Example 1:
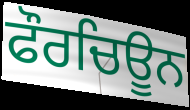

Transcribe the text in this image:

ਫੌਰਚਿਊਨ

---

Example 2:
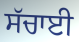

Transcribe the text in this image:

ਸੱਚਾਈ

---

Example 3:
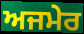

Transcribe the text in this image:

ਅਜਮੇਰ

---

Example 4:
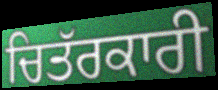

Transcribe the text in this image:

ਚਿਤੱਰਕਾਰੀ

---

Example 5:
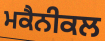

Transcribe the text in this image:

ਮਕੈਨੀਕਲ